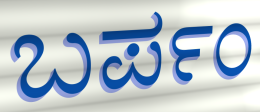
ಬರ್ಪಂ